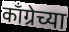
काँग्रेच्या